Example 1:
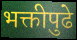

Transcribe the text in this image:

भक्तीपुढे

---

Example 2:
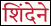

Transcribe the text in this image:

शिंदेने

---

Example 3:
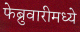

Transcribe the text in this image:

फेब्रुवारीमध्ये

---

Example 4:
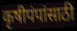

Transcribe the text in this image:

कृषीपंपांसाठी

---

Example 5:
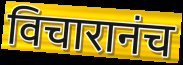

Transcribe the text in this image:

विचारानंच